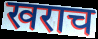
खराच